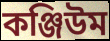
কঞ্জিউম